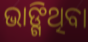
ଭାଙ୍ଗିଥିବା